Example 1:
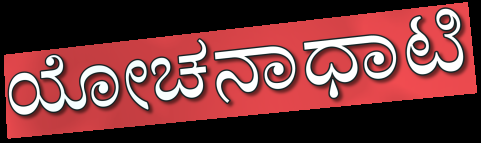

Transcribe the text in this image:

ಯೋಚನಾಧಾಟಿ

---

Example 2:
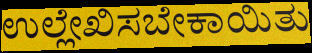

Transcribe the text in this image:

ಉಲ್ಲೇಖಿಸಬೇಕಾಯಿತು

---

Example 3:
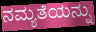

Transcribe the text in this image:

ನಮ್ಯತೆಯನ್ನು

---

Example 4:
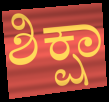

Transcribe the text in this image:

ಶಿಕ್ಷಾ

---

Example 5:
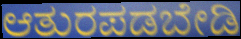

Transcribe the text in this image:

ಆತುರಪಡಬೇಡಿ